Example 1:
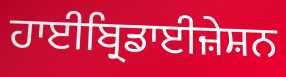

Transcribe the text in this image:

ਹਾਈਬ੍ਰਿਡਾਈਜ਼ੇਸ਼ਨ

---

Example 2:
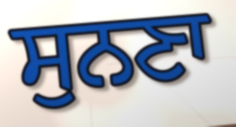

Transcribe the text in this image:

ਸੁਨਣਾ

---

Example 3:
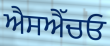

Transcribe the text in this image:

ਐਸਐੱਚਓ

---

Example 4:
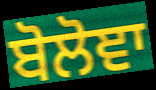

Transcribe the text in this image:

ਬੋਲੋਞਾ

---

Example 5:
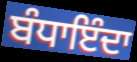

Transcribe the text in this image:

ਬੰਧਾਇੰਦਾ